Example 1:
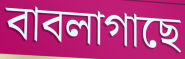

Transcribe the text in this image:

বাবলাগাছে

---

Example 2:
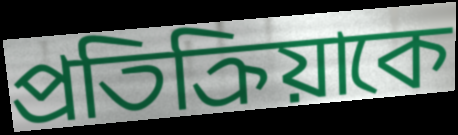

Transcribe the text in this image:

প্রতিক্রিয়াকে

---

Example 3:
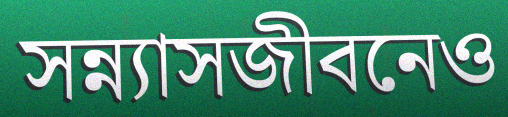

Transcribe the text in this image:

সন্ন্যাসজীবনেও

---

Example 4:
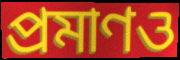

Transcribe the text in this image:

প্রমাণও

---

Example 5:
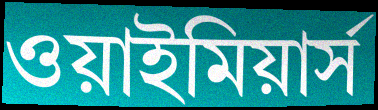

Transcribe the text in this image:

ওয়াইমিয়ার্স